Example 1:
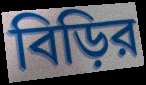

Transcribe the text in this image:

বিড়ির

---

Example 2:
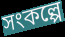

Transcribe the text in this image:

সংকল্পে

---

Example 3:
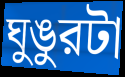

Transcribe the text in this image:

ঘুঙুরটা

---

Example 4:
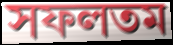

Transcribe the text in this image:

সফলতম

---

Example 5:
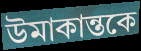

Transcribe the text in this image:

উমাকান্তকে